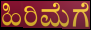
ಹಿರಿಮೆಗೆ